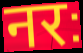
नरः